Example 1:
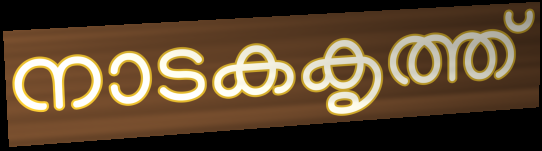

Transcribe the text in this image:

നാടകകൃത്ത്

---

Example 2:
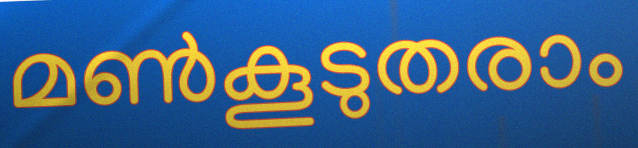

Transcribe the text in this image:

മൺകൂടുതരാം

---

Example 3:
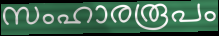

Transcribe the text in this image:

സംഹാരരൂപം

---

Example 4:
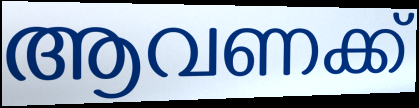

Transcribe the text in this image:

ആവണക്ക്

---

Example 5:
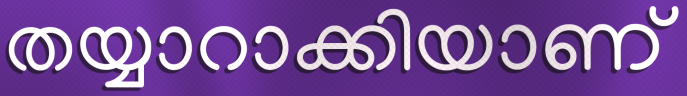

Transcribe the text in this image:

തയ്യാറാക്കിയാണ്